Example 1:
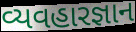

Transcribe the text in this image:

વ્યવહારજ્ઞાન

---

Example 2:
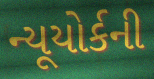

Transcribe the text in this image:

ન્યૂયોર્કની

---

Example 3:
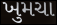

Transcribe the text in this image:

ખુમચા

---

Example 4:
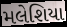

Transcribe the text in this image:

મલેશિયા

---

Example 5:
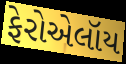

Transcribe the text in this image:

ફેરોએલૉય